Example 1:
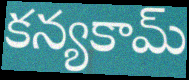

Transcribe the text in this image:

కన్యకామ్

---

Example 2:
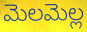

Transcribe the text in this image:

మెలమెల్ల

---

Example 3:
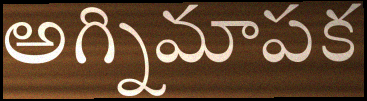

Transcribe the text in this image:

అగ్నిమాపక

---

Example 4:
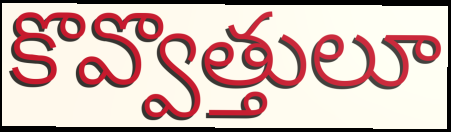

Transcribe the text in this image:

కొవ్వొత్తులూ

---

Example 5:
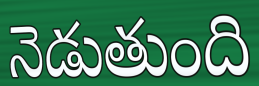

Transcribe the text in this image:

నెడుతుంది